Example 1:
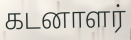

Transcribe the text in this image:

கடனாளர்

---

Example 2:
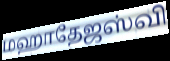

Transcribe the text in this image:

மஹாதேஜஸ்வி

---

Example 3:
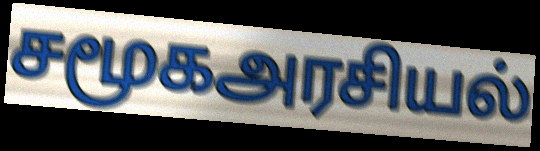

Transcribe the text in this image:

சமூகஅரசியல்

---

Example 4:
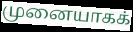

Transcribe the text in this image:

முனையாகக்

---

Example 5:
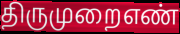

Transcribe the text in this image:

திருமுறைஎண்